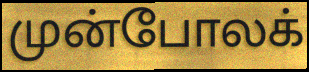
முன்போலக்